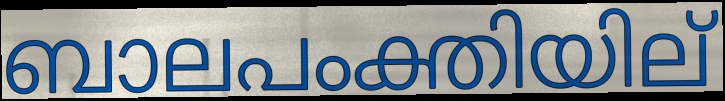
ബാലപംക്തിയില്